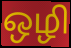
ஒழி